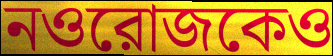
নওরোজকেও